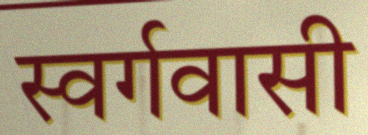
स्‍वर्गवासी